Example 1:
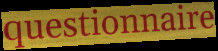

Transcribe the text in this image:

questionnaire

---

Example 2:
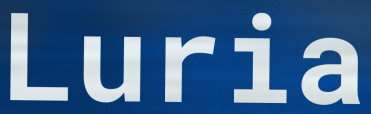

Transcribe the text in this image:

Luria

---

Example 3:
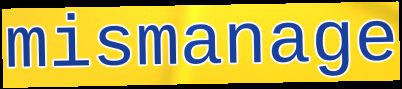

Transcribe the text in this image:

mismanage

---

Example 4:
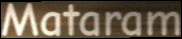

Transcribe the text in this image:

Mataram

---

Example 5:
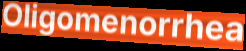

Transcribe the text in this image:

Oligomenorrhea